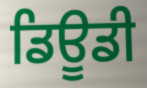
ਡਿਊਡੀ